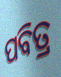
ପବିତ୍ର